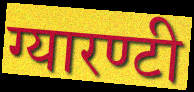
ग्यारण्टी